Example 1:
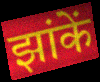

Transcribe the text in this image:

झांकें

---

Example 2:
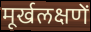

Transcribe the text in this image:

मूर्खलक्षणें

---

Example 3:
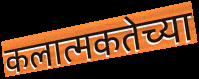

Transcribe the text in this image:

कलात्मकतेच्या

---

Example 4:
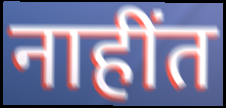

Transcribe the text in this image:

नाहींत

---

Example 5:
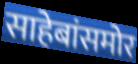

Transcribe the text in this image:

साहेबांसमोर